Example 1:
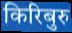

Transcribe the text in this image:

किरिबुरु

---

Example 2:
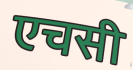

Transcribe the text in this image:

एचसी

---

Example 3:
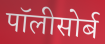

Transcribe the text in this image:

पॉलीसोर्ब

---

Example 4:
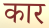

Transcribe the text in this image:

कार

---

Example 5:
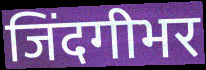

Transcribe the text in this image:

जिंदगीभर